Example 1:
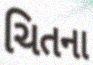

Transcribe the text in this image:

ચિતના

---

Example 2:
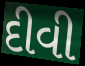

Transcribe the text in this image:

દીવી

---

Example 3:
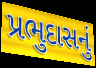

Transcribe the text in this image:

પ્રભુદાસનું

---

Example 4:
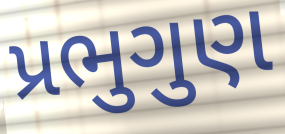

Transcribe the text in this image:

પ્રભુગુણ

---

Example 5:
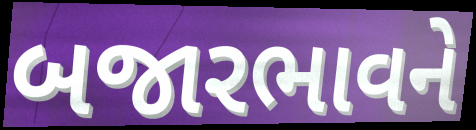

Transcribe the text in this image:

બજારભાવને